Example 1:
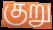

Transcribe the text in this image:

குறு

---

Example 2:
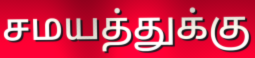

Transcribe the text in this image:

சமயத்துக்கு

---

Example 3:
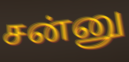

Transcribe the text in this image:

சன்னு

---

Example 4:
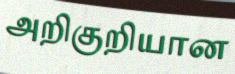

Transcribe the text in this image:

அறிகுறியான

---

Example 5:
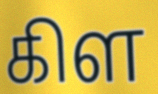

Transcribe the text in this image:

கிள